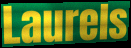
Laurels